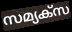
സമ്യക്സ